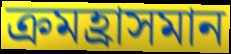
ক্রমহ্রাসমান